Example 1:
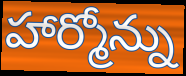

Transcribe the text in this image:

హార్మోన్ను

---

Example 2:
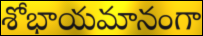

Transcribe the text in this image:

శోభాయమానంగా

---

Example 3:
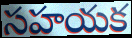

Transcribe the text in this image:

సహయక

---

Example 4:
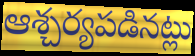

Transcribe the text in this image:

ఆశ్చర్యపడినట్లు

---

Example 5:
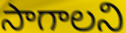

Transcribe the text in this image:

సాగాలని